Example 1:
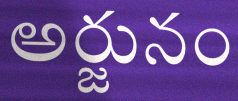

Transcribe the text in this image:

అర్జునం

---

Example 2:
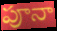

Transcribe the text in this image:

పూనా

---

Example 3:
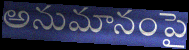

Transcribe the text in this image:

అనుమానంపై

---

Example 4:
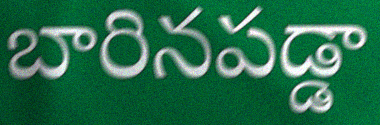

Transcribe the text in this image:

బారినపడ్డా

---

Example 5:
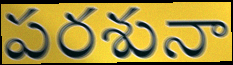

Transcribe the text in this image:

పరశునా